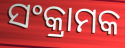
ସଂକ୍ରାମକ